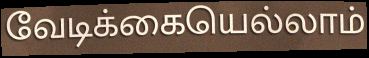
வேடிக்கையெல்லாம்